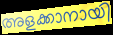
അളക്കാനായി